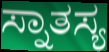
ಸ್ನಾತಸ್ಯ